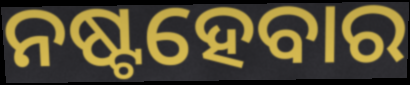
ନଷ୍ଟହେବାର